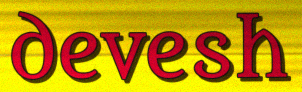
devesh